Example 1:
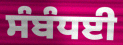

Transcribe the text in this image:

ਸੰਬੰਧਈ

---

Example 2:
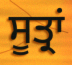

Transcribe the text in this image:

ਸੂਤ੍ਰਾਂ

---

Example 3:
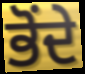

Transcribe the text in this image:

ਭੋਂਦੇ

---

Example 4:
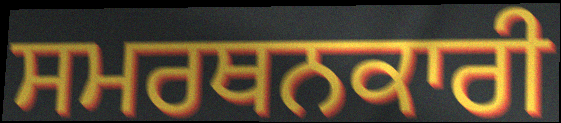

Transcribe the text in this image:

ਸਮਰਥਨਕਾਰੀ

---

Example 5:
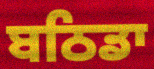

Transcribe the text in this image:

ਬਠਿਡਾ